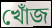
খোঁজ